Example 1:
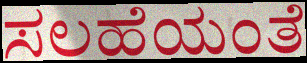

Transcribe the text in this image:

ಸಲಹೆಯಂತೆ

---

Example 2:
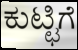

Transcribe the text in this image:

ಕುಟ್ಟಿಗೆ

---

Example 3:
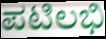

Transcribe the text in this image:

ಪಟಿಲಭಿ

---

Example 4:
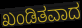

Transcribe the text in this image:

ಖಂಡಿತವಾದ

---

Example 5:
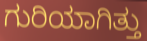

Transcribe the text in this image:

ಗುರಿಯಾಗಿತ್ತು